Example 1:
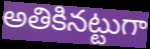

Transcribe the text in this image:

అతికినట్టుగా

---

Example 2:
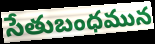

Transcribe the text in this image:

సేతుబంధమున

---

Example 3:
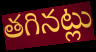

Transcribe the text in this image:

తగినట్లు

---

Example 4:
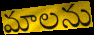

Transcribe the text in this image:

మాలను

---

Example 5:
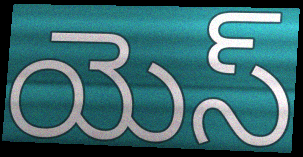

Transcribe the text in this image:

యెస్